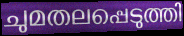
ചുമതലപ്പെടുത്തി